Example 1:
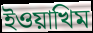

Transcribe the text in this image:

ইওয়াখিম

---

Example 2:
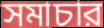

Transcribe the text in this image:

সমাচার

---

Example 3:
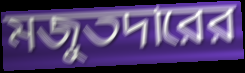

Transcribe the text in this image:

মজুতদারের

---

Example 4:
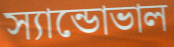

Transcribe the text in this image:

স্যান্ডোভাল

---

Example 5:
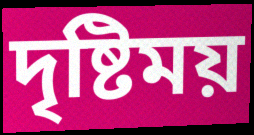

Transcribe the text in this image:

দৃষ্টিময়